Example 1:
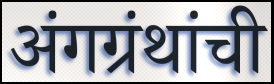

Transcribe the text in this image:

अंगग्रंथांची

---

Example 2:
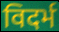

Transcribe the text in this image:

विदर्भ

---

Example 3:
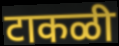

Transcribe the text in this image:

टाकळी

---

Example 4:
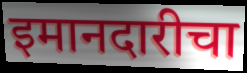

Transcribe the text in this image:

इमानदारीचा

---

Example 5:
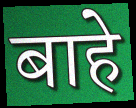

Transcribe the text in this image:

बाहे